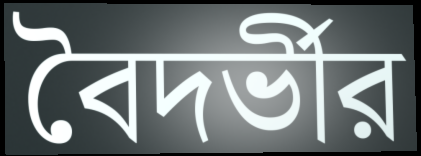
বৈদর্ভীর